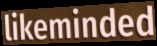
likeminded